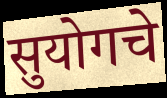
सुयोगचे